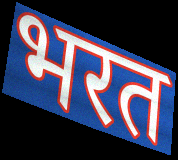
भरत